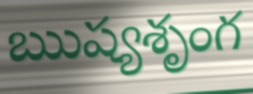
ఋష్యశృంగ